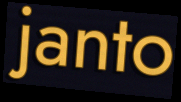
janto